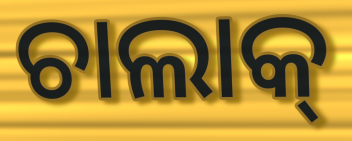
ଚାଲାକ୍